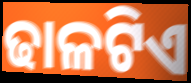
ଢାଳଟିଏ